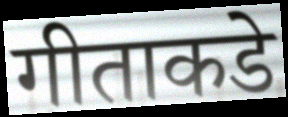
गीताकडे